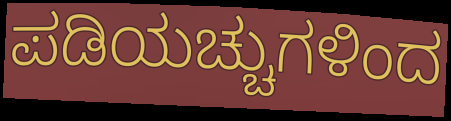
ಪಡಿಯಚ್ಚುಗಳಿಂದ